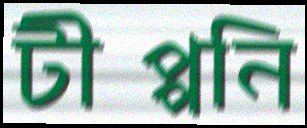
টীপ্পনি